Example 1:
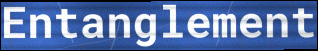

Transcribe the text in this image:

Entanglement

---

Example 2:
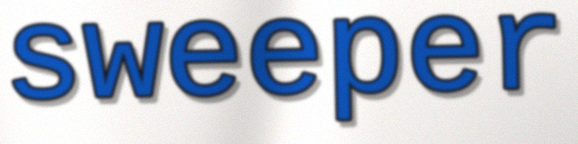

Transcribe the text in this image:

sweeper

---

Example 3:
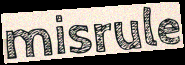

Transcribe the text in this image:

misrule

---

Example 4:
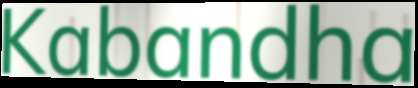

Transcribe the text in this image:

Kabandha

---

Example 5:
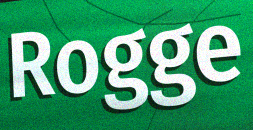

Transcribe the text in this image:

Rogge